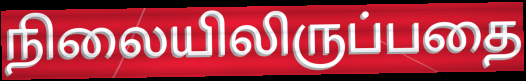
நிலையிலிருப்பதை